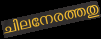
ചിലനേരത്തതു